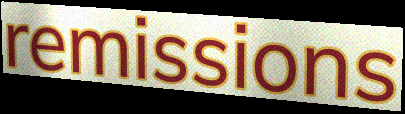
remissions